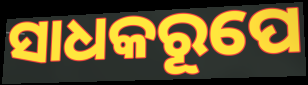
ସାଧକରୂପେ